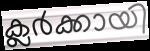
ക്ലർക്കായി